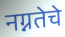
नग्नतेचे